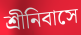
শ্ৰীনিবাসে